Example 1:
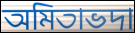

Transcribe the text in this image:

অমিতাভদা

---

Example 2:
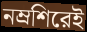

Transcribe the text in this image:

নম্রশিরেই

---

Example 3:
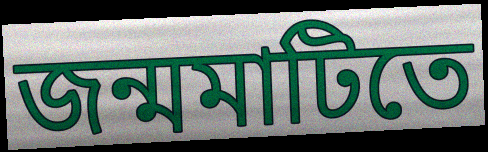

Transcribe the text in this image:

জন্মমাটিতে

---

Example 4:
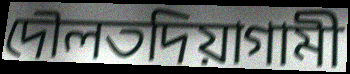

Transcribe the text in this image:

দৌলতদিয়াগামী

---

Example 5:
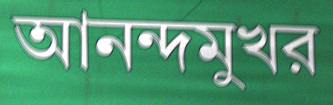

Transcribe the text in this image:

আনন্দমুখর